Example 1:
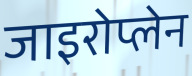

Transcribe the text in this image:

जाइरोप्लेन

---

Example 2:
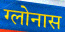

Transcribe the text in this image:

ग्लोनास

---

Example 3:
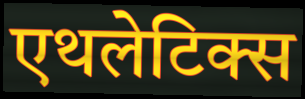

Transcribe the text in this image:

एथलेटिक्‍स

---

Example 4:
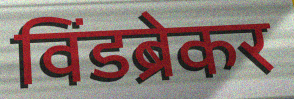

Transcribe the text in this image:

विंडब्रेकर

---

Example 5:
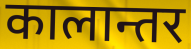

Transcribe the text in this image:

कालान्तर